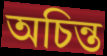
অচিন্ত